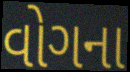
વોગના